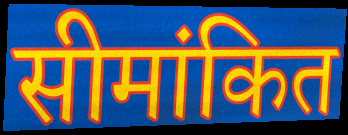
सीमांकित